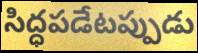
సిద్ధపడేటప్పుడు